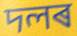
দলৰ